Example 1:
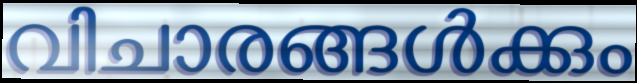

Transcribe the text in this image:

വിചാരങ്ങൾക്കും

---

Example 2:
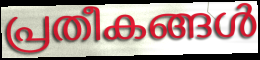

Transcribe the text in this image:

പ്രതീകങ്ങൾ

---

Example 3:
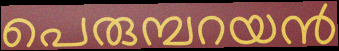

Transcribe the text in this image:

പെരുമ്പറയൻ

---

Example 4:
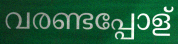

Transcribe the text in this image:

വരണ്ടപ്പോള്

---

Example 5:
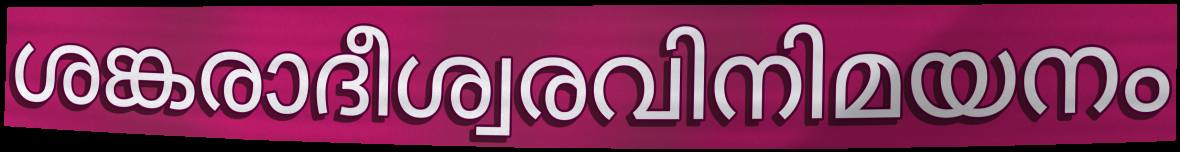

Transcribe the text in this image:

ശങ്കരാദീശ്വരവിനിമയനം